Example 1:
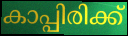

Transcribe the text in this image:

കാപ്പിരിക്ക്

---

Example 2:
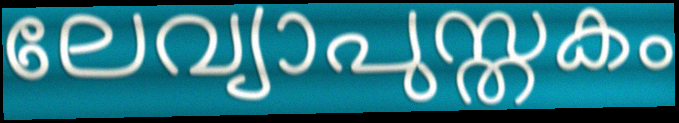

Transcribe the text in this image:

ലേവ്യാപുസ്തകം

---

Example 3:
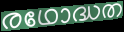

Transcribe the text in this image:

രഥോദ്ധത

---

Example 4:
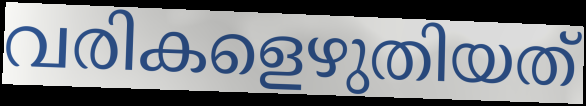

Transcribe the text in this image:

വരികളെഴുതിയത്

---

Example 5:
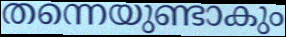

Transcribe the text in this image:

തന്നെയുണ്ടാകും